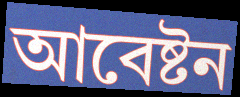
আবেষ্টন